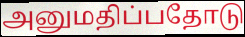
அனுமதிப்பதோடு